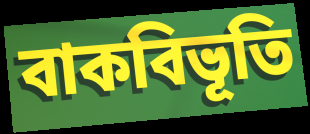
বাকবিভূতি